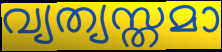
വ്യത്യസ്തമാ